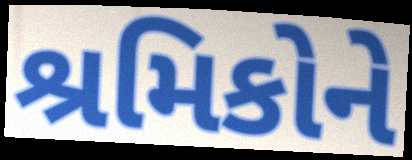
શ્રમિકોને